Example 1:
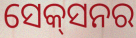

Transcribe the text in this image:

ସେକ୍‍ସନର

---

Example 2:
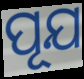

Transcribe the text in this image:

ପୂଯ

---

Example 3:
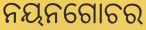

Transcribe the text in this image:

ନୟନଗୋଚର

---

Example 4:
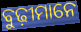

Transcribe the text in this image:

ବୁଢ଼ୀମାନେ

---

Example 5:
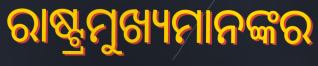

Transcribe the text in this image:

ରାଷ୍ଟ୍ରମୁଖ୍ୟମାନଙ୍କର